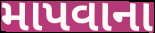
માપવાના